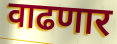
वाढणार